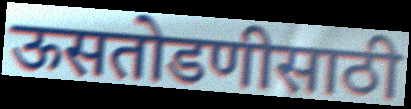
ऊसतोडणीसाठी